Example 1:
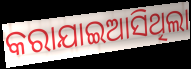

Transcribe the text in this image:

କରାଯାଇଆସିଥିଲା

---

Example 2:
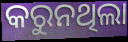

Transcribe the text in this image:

କରୁନଥିଲା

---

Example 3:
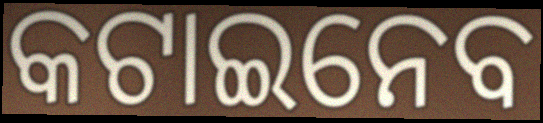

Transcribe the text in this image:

କଟାଇନେବ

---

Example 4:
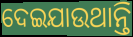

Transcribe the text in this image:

ଦେଇଯାଉଥାନ୍ତି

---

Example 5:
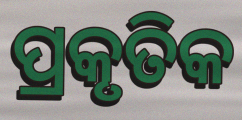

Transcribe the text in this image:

ପ୍ରକୃତିକ